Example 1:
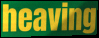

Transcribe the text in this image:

heaving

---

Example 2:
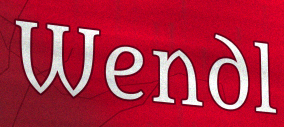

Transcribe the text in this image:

Wendl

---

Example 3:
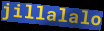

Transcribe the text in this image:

jillalalo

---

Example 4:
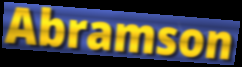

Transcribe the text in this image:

Abramson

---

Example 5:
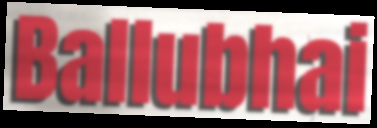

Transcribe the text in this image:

Ballubhai